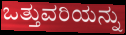
ಒತ್ತುವರಿಯನ್ನು